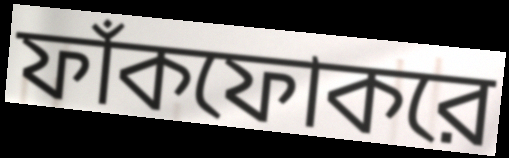
ফাঁকফোকরে